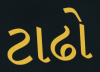
ટાઢો